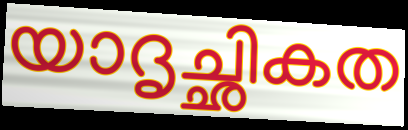
യാദൃച്ഛികത